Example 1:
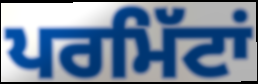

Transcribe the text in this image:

ਪਰਮਿੱਟਾਂ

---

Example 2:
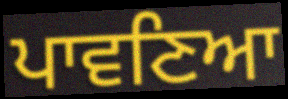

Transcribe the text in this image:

ਪਾਵਣਿਆ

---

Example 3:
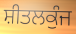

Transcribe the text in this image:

ਸ਼ੀਤਲਕੁੰਜ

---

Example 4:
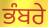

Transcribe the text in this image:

ਭੰਬਰੇ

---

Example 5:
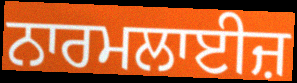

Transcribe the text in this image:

ਨਾਰਮਲਾਈਜ਼